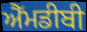
ਐੱਮਡੀਬੀ